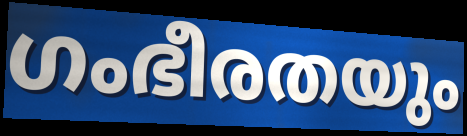
ഗംഭീരതയും